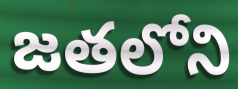
జతలోని